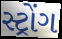
સ્ટ્રોંગ